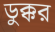
ডুক্কর